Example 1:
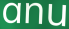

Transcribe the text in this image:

anu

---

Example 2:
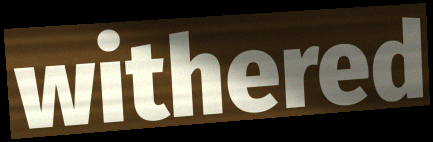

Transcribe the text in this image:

withered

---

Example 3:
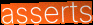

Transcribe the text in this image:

asserts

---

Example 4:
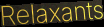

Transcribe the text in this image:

Relaxants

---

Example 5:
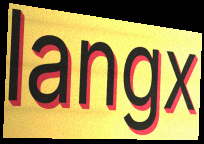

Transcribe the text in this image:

langx